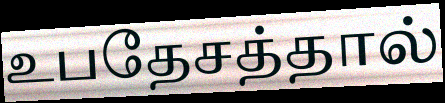
உபதேசத்தால்